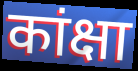
कांक्षा